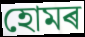
হোমৰ